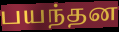
பயந்தன